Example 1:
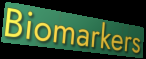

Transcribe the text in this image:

Biomarkers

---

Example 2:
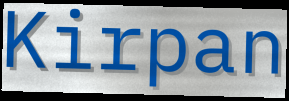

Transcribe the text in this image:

Kirpan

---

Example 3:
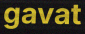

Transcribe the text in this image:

gavat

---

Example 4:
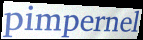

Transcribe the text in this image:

pimpernel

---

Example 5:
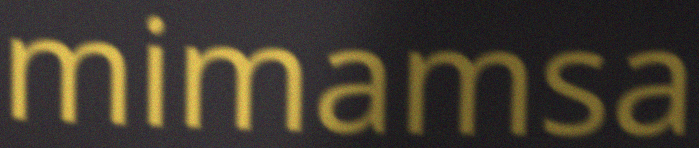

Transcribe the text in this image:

mimamsa